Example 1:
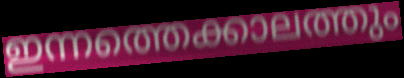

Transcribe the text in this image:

ഇന്നത്തെക്കാലത്തും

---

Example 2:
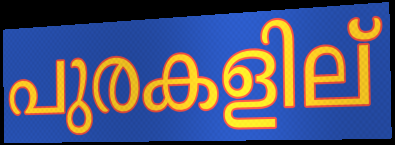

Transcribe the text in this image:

പുരകളില്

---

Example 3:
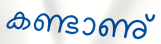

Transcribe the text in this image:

കണ്ടാണു്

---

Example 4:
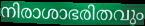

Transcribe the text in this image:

നിരാശാഭരിതവും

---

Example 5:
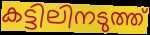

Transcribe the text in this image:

കട്ടിലിനടുത്ത്